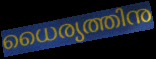
ധൈര്യത്തിനു